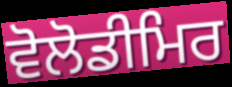
ਵੋਲੋਡੀਮਿਰ